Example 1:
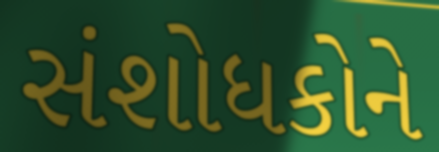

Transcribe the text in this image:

સંશોધકોને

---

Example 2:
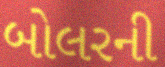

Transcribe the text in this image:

બોલરની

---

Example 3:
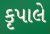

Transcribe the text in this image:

કૃપાલે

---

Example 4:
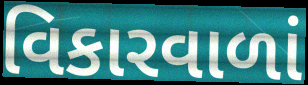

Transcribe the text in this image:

વિકારવાળાં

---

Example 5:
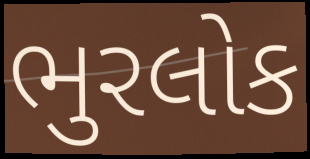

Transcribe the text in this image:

ભુરલોક